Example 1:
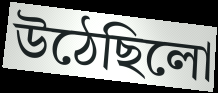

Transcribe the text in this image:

উঠেছিলো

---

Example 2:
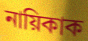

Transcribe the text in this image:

নায়িকাক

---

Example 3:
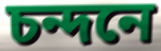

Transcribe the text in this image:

চন্দনে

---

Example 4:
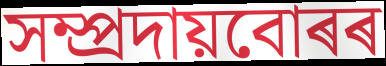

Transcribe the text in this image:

সম্প্ৰদায়বোৰৰ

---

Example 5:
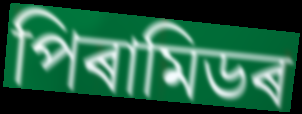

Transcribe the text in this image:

পিৰামিডৰ